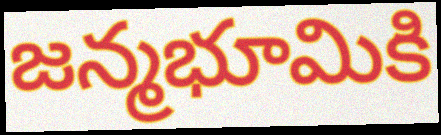
జన్మభూమికి